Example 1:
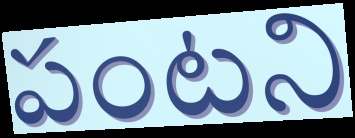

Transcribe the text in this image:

పంటని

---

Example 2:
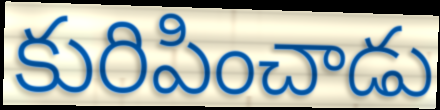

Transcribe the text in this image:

కురిపించాడు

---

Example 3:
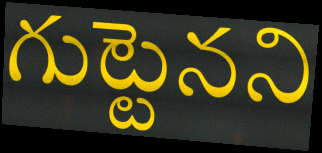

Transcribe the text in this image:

గుట్టెనని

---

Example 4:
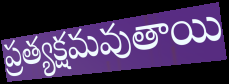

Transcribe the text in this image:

ప్రత్యక్షమవుతాయి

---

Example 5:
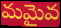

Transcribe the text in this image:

మమైవ